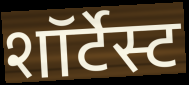
शॉर्टेस्ट